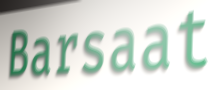
Barsaat